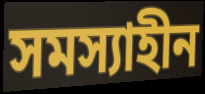
সমস্যাহীন